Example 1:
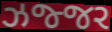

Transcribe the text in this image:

ઝજ્જર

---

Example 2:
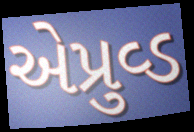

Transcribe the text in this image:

એપ્રુવ્ડ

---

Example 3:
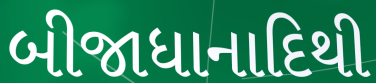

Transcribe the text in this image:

બીજાધાનાદિથી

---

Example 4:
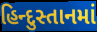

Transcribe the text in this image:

હિન્દુસ્તાનમાં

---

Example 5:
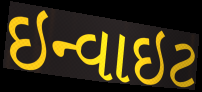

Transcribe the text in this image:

ઇન્વાઇટ